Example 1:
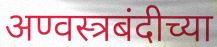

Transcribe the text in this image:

अण्वस्त्रबंदीच्या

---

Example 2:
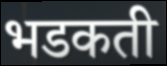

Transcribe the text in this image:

भडकती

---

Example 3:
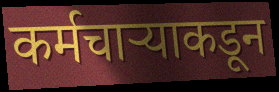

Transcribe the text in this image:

कर्मचाऱ्याकडून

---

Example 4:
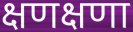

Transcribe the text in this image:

क्षणक्षणा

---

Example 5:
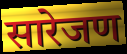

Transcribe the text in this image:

सारेजण